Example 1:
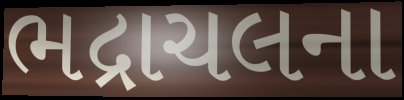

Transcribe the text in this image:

ભદ્રાચલના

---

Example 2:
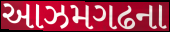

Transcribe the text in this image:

આઝમગઢના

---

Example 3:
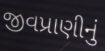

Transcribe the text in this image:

જીવપ્રાણીનું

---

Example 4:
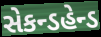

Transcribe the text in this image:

સેકન્ડહેન્ડ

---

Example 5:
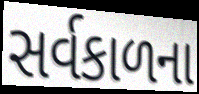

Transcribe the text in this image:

સર્વકાળના